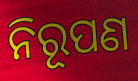
ନିରୂପଣ